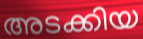
അടക്കിയ